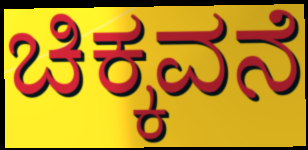
ಚಿಕ್ಕವನೆ